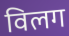
विलग